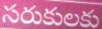
సరుకులకు